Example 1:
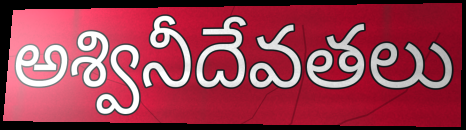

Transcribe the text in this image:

అశ్వినీదేవతలు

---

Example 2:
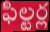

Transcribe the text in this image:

ఫిల్టర్ల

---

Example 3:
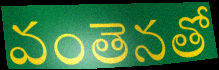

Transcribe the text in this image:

వంతెనతో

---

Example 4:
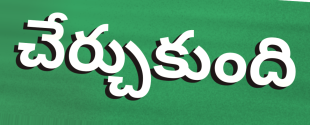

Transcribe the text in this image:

చేర్చుకుంది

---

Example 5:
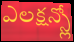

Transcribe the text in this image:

ఎలక్షన్స్లో